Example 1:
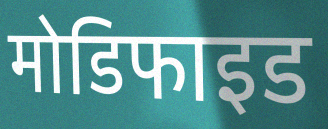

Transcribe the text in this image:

मोडिफाइड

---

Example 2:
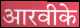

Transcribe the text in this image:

आरवीके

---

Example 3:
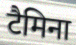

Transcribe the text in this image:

टैमिना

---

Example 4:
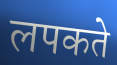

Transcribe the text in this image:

लपकते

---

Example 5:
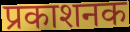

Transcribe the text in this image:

प्रकाशनक